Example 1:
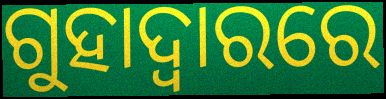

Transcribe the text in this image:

ଗୁହାଦ୍ଵାରରେ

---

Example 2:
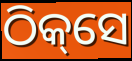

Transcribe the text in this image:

ଠିକ୍‌ସେ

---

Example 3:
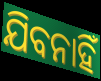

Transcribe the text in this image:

ଯିବନାହିଁ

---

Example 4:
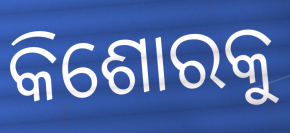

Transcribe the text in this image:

କିଶୋରକୁ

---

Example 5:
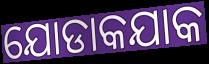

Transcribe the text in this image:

ଯୋଡାକଯାକ